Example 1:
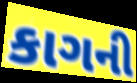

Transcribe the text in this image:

કાગની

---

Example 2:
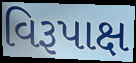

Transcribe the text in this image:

વિરૂપાક્ષ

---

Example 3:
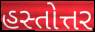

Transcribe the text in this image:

હસ્તોત્તર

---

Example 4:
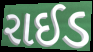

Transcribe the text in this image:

રાઈડ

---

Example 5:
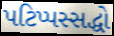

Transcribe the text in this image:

પટિપ્પસ્સદ્ધો